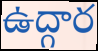
ఉద్గార